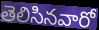
తెలిసినవారో